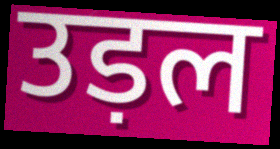
उड़ल